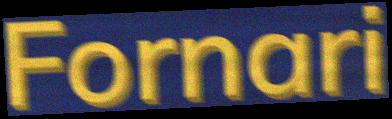
Fornari